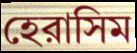
হেরাসিম